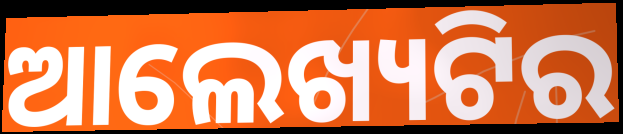
ଆଲେଖ୍ୟଟିର